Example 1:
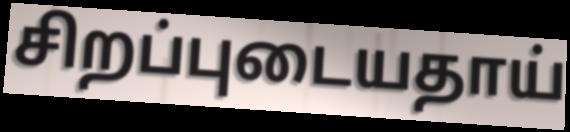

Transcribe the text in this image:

சிறப்புடையதாய்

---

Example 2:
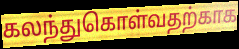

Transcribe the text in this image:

கலந்துகொள்வதற்காக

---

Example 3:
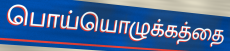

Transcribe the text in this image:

பொய்யொழுக்கத்தை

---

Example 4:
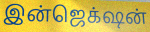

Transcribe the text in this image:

இன்ஜெக்‌ஷன்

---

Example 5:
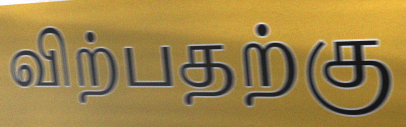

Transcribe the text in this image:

விற்பதற்கு